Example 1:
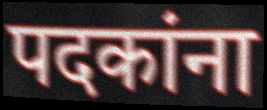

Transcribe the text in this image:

पदकांना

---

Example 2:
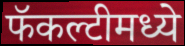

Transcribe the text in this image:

फॅकल्टीमध्ये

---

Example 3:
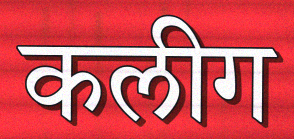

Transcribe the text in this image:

कलीग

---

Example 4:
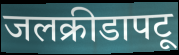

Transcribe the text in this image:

जलक्रीडापटू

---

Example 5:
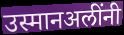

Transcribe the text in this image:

उस्मानअलींनी